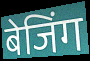
बेजिंग